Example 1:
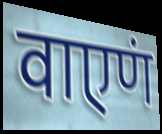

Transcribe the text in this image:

वाएणं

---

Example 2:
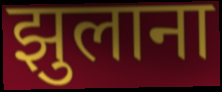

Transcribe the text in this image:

झुलाना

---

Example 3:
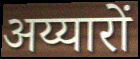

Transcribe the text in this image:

अय्यारों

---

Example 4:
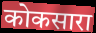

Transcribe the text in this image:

कोकसारा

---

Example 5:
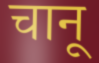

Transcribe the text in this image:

चानू